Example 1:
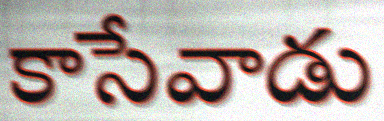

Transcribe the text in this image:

కాసేవాడు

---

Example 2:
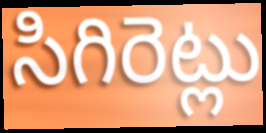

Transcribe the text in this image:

సిగిరెట్లు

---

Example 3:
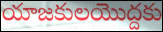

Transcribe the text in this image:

యాజకులయొద్దకు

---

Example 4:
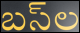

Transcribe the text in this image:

బస్‌ల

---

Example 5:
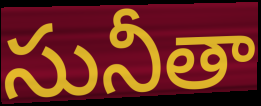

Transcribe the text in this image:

సునీతా